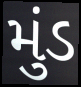
મુંડ